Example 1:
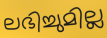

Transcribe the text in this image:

ലഭിച്ചുമില്ല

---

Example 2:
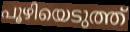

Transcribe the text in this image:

പൂഴിയെടുത്ത്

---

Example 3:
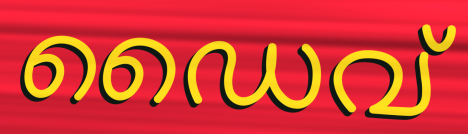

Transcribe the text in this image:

ഡൈവ്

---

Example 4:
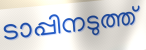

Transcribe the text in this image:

ടാപ്പിനടുത്ത്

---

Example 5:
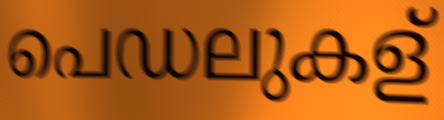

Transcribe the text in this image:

പെഡലുകള്